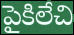
పైకిలేచి